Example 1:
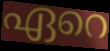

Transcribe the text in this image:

ഏറെ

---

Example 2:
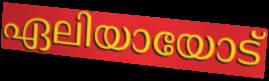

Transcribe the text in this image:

ഏലിയായോട്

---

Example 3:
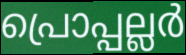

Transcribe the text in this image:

പ്രൊപ്പല്ലർ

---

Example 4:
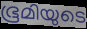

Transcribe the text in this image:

ഭൂമിയുടെ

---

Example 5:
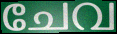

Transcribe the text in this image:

ചേവ